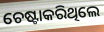
ଚେଷ୍ଟାକରିଥିଲେ